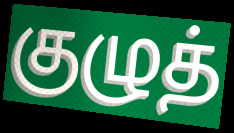
குழுத்